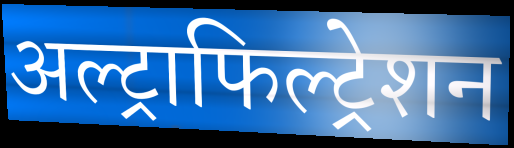
अल्ट्राफिल्ट्रेशन